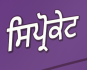
ਸਿਪ੍ਰੋਕੇਟ